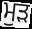
ਮੁੜ